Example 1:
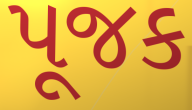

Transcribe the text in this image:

પૂજક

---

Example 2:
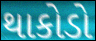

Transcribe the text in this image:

થાકોડો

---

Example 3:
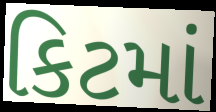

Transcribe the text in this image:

કિટમાં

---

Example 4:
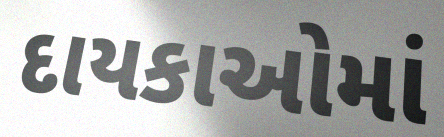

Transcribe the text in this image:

દાયકાઓમાં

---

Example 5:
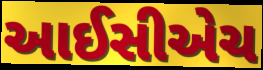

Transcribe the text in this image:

આઈસીએચ